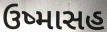
ઉષ્માસહ